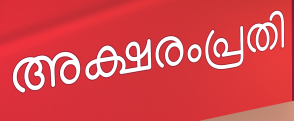
അക്ഷരംപ്രതി